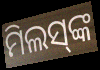
ମିଲସ୍‍ଙ୍କ